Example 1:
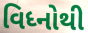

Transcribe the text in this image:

વિધ્નોથી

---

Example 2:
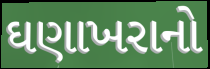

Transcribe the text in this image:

ઘણાખરાનો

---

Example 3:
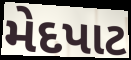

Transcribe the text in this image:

મેદપાટ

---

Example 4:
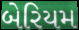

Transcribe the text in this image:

બેરિયમ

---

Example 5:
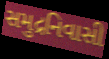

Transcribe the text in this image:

સમુદ્રનિવાસી